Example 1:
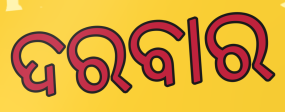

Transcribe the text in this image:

ଦରବାର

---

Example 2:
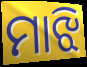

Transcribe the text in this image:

ମାଝି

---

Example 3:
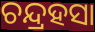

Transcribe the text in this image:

ଚନ୍ଦ୍ରହସା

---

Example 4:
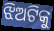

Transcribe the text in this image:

ଝିଅଟିକୁ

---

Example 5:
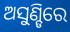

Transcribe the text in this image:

ଅସୁଣ୍ଡିରେ